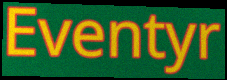
Eventyr